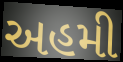
અહમી